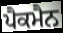
ਪੈਕਮੈਨ